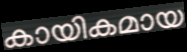
കായികമായ